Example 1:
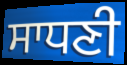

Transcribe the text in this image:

ਸਾਧਣੀ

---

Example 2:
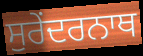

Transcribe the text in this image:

ਸੁਰੇਂਦਰਨਾਥ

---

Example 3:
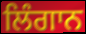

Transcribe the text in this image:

ਲਿੰਗਾਨ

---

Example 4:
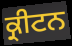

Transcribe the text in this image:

ਕ੍ਰੀਟਨ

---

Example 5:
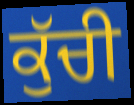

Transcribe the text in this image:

ਕੁੱਚੀ